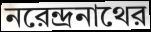
নরেন্দ্রনাথের